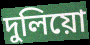
দুলিয়ো